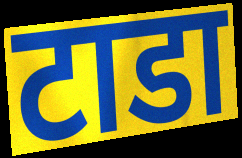
टाडा